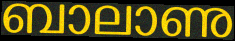
ബാലാണു